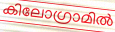
കിലോഗ്രാമിൽ